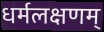
धर्मलक्षणम्